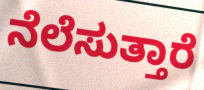
ನೆಲೆಸುತ್ತಾರೆ